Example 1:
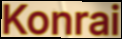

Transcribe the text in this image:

Konrai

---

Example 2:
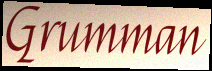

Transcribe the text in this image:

Grumman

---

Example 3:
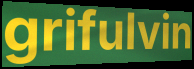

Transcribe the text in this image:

grifulvin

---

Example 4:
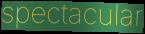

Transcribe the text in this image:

spectacular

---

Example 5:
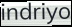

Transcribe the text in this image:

indriyo